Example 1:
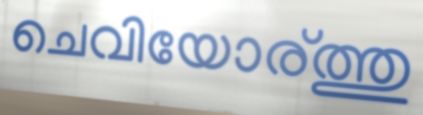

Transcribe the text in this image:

ചെവിയോര്ത്തു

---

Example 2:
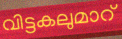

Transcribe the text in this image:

വിട്ടകലുമാറ്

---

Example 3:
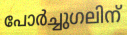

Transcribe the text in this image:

പോർച്ചുഗലിന്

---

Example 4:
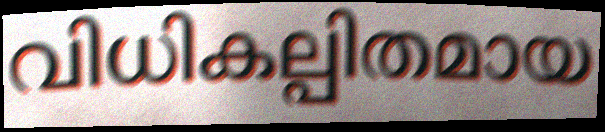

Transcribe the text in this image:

വിധികല്പിതമായ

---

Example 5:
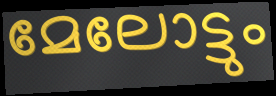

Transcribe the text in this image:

മേലോട്ടും